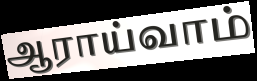
ஆராய்வாம்